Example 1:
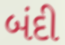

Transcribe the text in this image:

બંદી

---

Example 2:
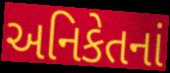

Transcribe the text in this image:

અનિકેતનાં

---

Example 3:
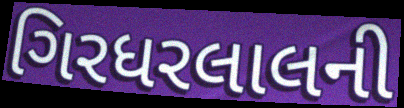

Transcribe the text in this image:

ગિરધરલાલની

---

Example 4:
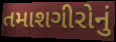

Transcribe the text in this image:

તમાશગીરોનું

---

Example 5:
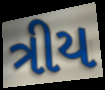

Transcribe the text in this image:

ત્રીય